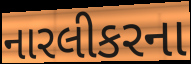
નારલીકરના